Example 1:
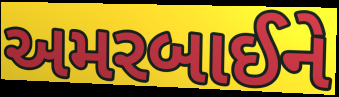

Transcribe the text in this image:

અમરબાઈને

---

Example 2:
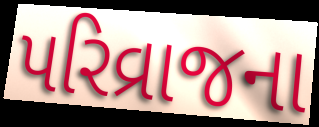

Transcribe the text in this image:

પરિવ્રાજના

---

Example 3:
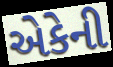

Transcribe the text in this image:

એકેની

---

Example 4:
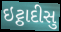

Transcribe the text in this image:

ઇટ્ઠાદીસુ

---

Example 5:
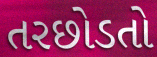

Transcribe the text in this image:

તરછોડતો